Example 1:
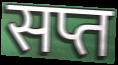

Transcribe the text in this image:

सप्त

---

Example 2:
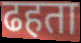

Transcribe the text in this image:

ढहता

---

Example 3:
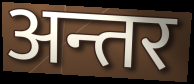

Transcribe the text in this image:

अन्‍तर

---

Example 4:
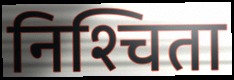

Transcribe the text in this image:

निश्चिता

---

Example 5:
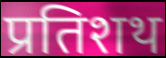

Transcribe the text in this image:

प्रतिशथ